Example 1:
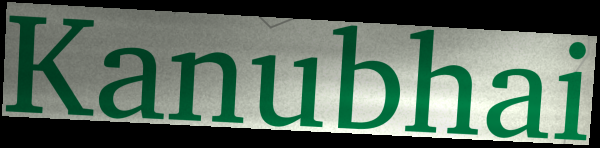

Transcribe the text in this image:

Kanubhai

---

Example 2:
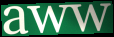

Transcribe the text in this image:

aww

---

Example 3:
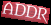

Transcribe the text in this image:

ADDR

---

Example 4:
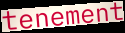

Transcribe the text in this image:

tenement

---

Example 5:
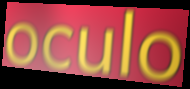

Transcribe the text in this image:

oculo